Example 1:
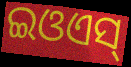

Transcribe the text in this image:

ଇଓଏସ୍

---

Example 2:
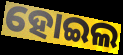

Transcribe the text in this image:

ହୋଇଲ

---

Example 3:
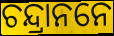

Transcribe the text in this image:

ଚନ୍ଦ୍ରାନନେ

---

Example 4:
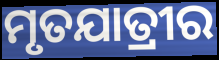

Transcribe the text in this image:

ମୃତଯାତ୍ରୀର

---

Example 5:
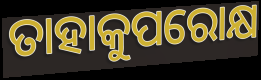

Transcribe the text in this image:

ତାହାକୁପରୋକ୍ଷ